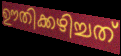
ഊതിക്കഴിച്ചത്